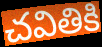
చవితికి